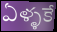
ఏళ్ళకే